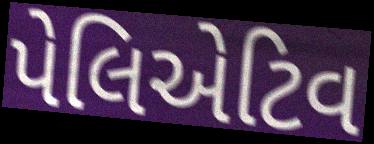
પેલિએટિવ